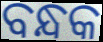
ବନ୍ଧକ